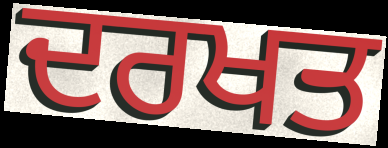
ਦਰਖਤ